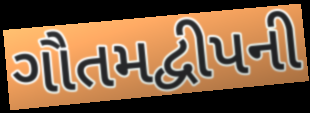
ગૌતમદ્વીપની